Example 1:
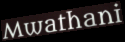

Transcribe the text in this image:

Mwathani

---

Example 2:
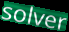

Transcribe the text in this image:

solver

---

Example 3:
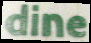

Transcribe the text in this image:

dine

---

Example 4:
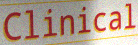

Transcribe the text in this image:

Clinical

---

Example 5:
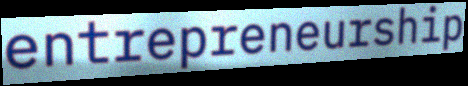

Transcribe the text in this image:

entrepreneurship